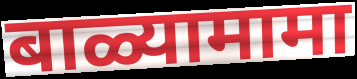
बाळ्यामामा